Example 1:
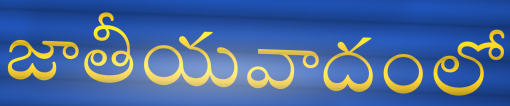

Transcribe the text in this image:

జాతీయవాదంలో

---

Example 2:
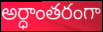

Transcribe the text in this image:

అర్ధాంతరంగా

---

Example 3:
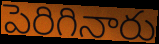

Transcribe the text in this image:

పెరిగినారు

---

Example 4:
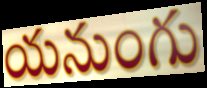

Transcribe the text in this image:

యనుంగు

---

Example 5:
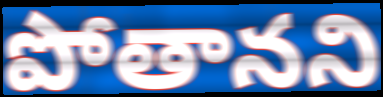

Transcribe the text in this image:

పోతానని